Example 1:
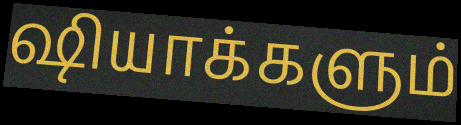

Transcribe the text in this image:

ஷியாக்களும்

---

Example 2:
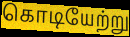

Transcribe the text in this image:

கொடியேற்று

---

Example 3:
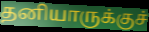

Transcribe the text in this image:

தனியாருக்குச்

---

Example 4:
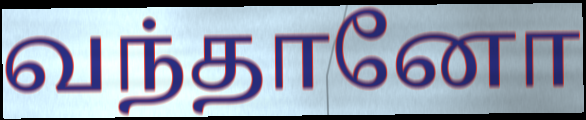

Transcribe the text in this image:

வந்தானோ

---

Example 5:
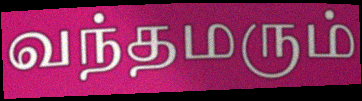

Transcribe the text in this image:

வந்தமரும்